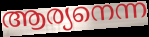
ആര്യനെന്ന